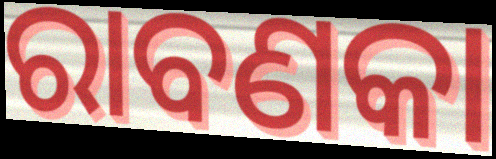
ରାବଣକା